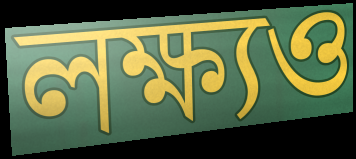
লক্ষ্যও